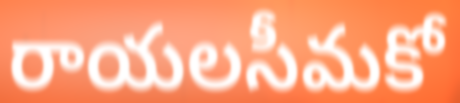
రాయలసీమకో